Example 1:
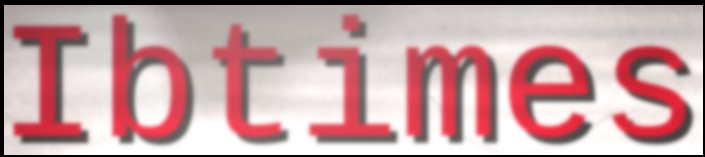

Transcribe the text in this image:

Ibtimes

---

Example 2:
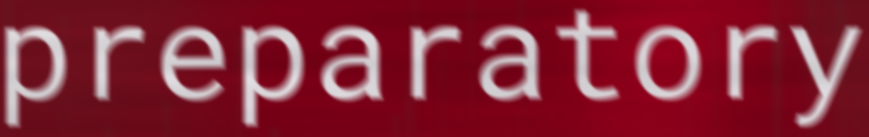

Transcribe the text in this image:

preparatory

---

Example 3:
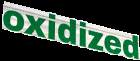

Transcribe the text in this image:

oxidized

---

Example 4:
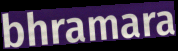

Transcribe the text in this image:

bhramara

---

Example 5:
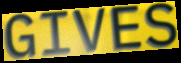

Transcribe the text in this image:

GIVES